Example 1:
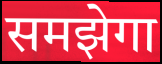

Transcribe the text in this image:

समझेगा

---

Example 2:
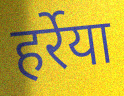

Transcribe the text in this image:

हर्रेया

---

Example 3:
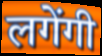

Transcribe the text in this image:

लगेंगी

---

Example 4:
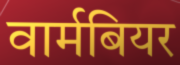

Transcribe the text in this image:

वार्मबियर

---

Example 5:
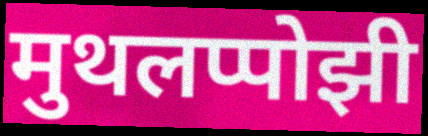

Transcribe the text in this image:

मुथलप्पोझी